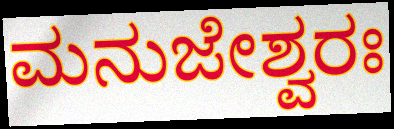
ಮನುಜೇಶ್ವರಃ